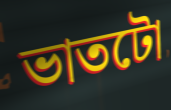
ভাতটো